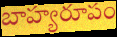
బాహ్యరూపం